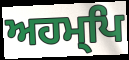
ਅਹਮ੍ਪਿ